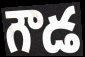
గౌడ